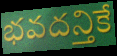
భవదన్తికే